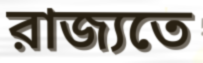
রাজ্যতে